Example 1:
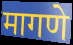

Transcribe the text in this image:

मागणे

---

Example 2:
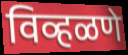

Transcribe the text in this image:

विव्हळणे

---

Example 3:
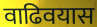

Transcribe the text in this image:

वाढिवयास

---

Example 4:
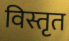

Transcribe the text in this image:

विस्तृत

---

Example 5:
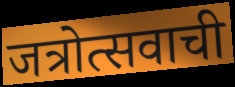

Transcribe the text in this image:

जत्रोत्सवाची